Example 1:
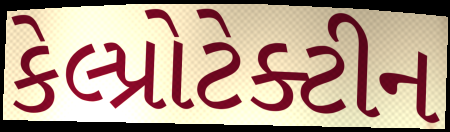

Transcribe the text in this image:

કેલ્પ્રોટેક્ટીન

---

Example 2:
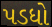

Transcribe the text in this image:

પડધો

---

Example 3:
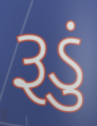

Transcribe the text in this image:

રૂડું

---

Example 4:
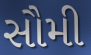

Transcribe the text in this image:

સૌમી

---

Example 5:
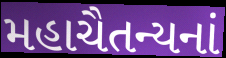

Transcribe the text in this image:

મહાચૈતન્યનાં